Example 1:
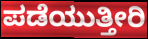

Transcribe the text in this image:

ಪಡೆಯುತ್ತೀರಿ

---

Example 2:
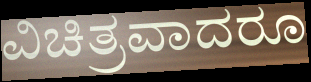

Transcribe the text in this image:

ವಿಚಿತ್ರವಾದರೂ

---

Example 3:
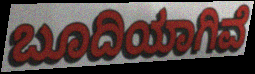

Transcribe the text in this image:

ಬೂದಿಯಾಗಿವೆ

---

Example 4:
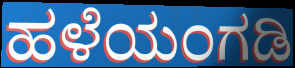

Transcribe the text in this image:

ಹಳೆಯಂಗಡಿ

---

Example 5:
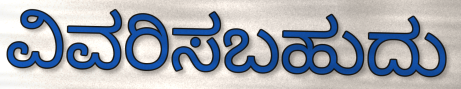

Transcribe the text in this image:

ವಿವರಿಸಬಹುದು